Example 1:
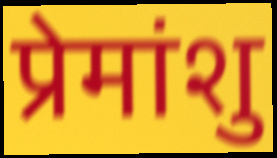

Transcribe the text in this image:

प्रेमांशु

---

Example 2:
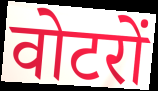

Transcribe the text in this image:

वोटरों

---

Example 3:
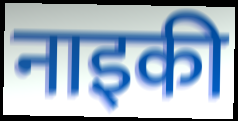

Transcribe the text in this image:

नाइकी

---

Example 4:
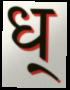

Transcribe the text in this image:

ध्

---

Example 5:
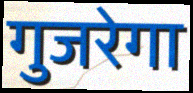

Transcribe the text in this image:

गुजरेगा